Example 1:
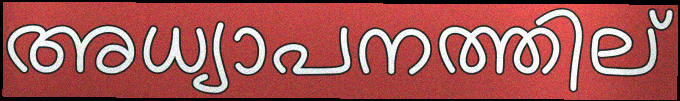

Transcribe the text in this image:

അധ്യാപനത്തില്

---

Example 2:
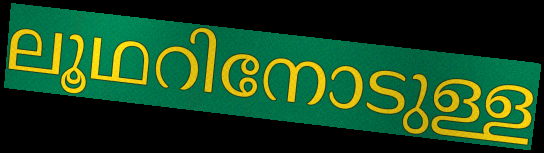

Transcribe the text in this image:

ലൂഥറിനോടുള്ള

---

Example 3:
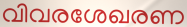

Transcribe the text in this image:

വിവരശേഖരണ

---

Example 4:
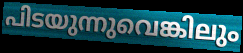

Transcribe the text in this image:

പിടയുന്നുവെങ്കിലും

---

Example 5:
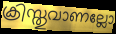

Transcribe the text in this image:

ക്രിസ്തുവാണല്ലോ